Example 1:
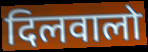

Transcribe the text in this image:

दिलवालो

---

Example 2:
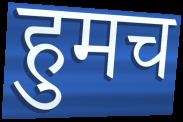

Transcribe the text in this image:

हुमच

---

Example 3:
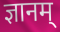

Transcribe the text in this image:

ज्ञानम्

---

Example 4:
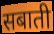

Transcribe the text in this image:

सबाती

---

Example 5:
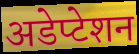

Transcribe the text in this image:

अडेप्टेशन